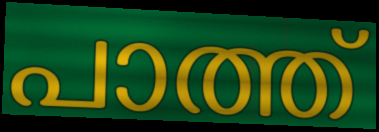
പാത്ത്